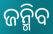
ଜନ୍ମିବ